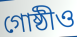
গোষ্ঠীও